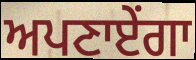
ਅਪਣਾਏਂਗਾ